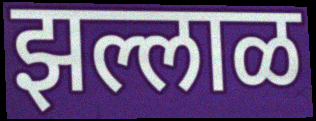
झल्लाळ